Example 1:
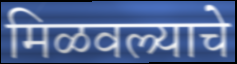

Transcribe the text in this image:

मिळवल्याचे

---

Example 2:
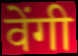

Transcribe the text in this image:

वेंगी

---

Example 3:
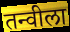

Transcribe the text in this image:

तन्वीला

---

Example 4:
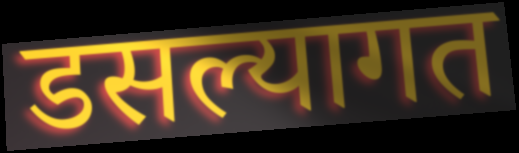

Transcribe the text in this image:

डसल्यागत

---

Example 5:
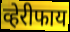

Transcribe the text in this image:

व्हेरीफाय